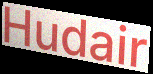
Hudair